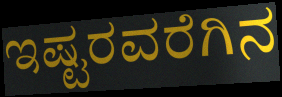
ಇಷ್ಟರವರೆಗಿನ